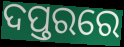
ଦପ୍ତରରେ